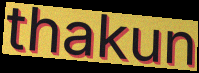
thakun